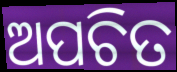
ଅପଚିତ